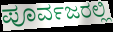
ಪೂರ್ವಜರಲ್ಲಿ